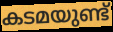
കടമയുണ്ട്